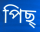
পিছ্